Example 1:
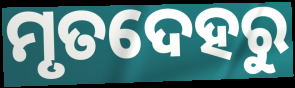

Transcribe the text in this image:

ମୃତଦେହରୁ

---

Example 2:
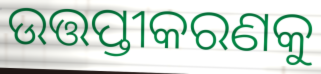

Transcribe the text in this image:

ଉତ୍ତପ୍ତୀକରଣକୁ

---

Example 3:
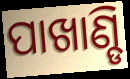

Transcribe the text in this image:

ପାଖାଣ୍ଡି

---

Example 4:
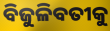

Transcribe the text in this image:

ବିଜୁଳିବତୀକୁ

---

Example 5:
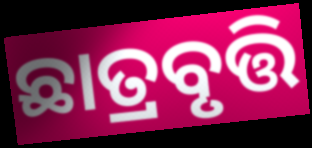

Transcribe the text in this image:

ଛାତ୍ରବୃତ୍ତି